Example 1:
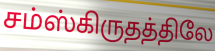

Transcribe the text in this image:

சம்ஸ்கிருதத்திலே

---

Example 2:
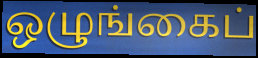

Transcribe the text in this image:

ஒழுங்கைப்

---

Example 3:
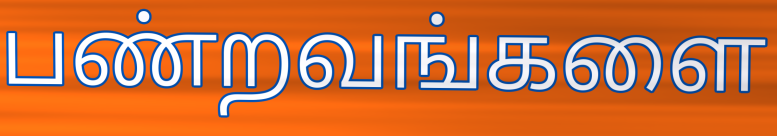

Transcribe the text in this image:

பண்றவங்களை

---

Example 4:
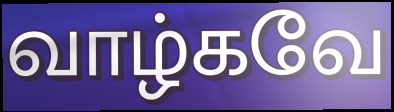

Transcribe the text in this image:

வாழ்கவே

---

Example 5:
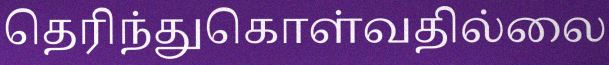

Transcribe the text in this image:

தெரிந்துகொள்வதில்லை